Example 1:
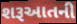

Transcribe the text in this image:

શરૂઆતની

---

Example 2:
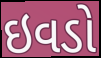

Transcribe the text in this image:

ઇવડો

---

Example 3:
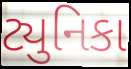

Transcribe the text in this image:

ટ્યુનિકા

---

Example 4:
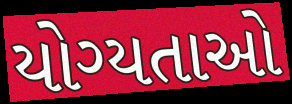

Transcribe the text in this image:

યોગ્યતાઓ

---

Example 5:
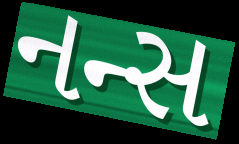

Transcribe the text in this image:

નન્સ